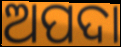
ଅପଦା